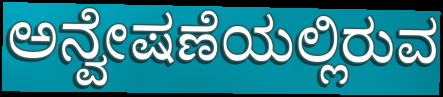
ಅನ್ವೇಷಣೆಯಲ್ಲಿರುವ